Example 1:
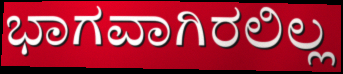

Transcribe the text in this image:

ಭಾಗವಾಗಿರಲಿಲ್ಲ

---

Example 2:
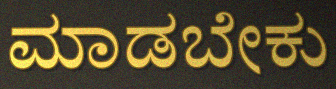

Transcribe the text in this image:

ಮಾಡಬೇಕು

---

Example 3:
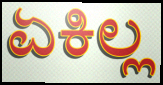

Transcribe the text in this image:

ಏಕಿಲ್ಲ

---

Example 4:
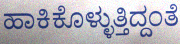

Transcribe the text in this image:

ಹಾಕಿಕೊಳ್ಳುತ್ತಿದ್ದಂತೆ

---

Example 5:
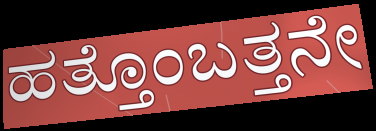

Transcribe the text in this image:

ಹತ್ತೊಂಬತ್ತನೇ